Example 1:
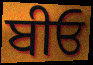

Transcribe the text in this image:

ਬੀਓ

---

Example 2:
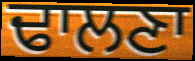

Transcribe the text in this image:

ਢਾਲਣਾ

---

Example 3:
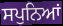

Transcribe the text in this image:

ਸਪੁਨਿਆਂ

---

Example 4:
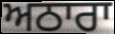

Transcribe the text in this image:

ਅਠਾਰਾ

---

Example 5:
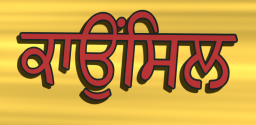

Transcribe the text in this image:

ਕਾਉਂਸਿਲ